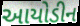
આયોડીન